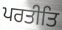
ਪਰਤੀਤਿ